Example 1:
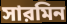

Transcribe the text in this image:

সারমিন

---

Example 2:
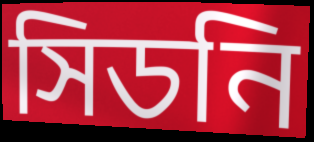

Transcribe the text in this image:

সিডনি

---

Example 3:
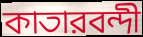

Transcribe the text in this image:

কাতারবন্দী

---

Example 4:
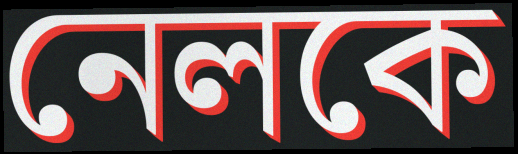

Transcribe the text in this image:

নেলকে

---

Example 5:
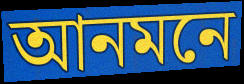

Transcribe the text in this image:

আনমনে